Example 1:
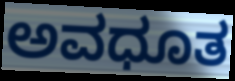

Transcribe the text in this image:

ಅವಧೂತ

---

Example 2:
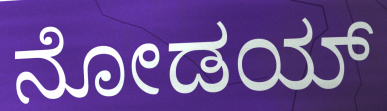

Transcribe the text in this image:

ನೋಡಯ್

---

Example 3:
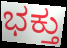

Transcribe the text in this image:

ಭಕ್ತು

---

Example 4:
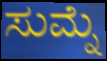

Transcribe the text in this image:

ಸುಮ್ನೆ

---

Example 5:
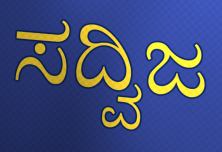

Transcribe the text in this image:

ಸದ್ವಿಜ